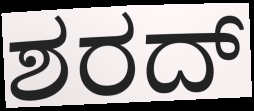
ಶರದ್